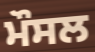
ਮੌਸਲ